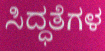
ಸಿದ್ಧತೆಗಳ